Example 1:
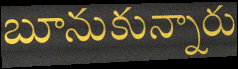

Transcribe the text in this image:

బూనుకున్నారు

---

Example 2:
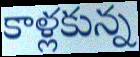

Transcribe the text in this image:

కాళ్లకున్న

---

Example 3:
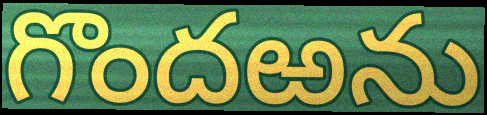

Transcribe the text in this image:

గొందఱను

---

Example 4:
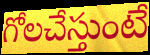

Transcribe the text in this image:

గోలచేస్తుంటే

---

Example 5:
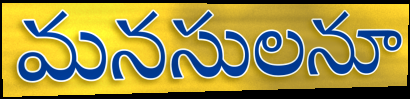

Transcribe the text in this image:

మనసులనూ